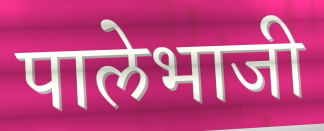
पालेभाजी